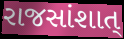
રાજસાંશાત્